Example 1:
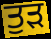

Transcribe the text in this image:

ਤੁੜ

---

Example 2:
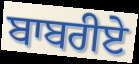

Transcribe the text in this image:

ਬਾਬਰੀਏ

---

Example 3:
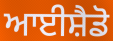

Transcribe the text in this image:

ਆਈਸ਼ੈਡੋ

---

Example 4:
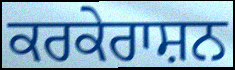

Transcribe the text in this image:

ਕਰਕੇਰਾਸ਼ਨ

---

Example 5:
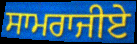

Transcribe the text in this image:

ਸਾਮਰਾਜੀਏ